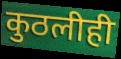
कुठलीही